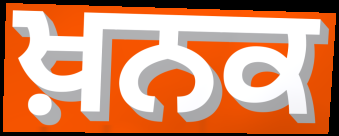
ਖ਼ਨਕ